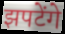
झपटेंगे